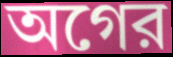
অগের